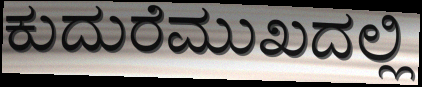
ಕುದುರೆಮುಖದಲ್ಲಿ